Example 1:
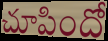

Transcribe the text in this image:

చూపిందో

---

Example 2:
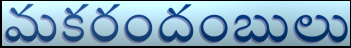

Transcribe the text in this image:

మకరందంబులు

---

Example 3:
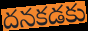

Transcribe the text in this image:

దనకడకు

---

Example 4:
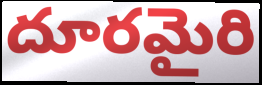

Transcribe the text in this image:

దూరమైరి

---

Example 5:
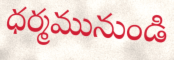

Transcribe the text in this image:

ధర్మమునుండి